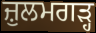
ਜ਼ੁਲਮਗੜ੍ਹ